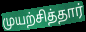
முயற்சித்தார்